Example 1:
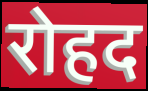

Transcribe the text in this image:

रोहद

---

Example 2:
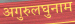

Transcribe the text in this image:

अगुरुलघुनाम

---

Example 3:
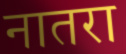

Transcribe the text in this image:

नातरा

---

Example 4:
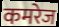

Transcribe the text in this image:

कमरेज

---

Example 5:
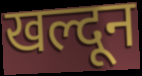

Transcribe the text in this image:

खल्दून